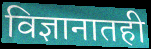
विज्ञानातही